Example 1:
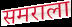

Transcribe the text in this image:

समराला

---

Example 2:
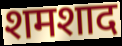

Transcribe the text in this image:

शमशाद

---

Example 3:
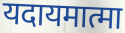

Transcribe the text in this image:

यदायमात्मा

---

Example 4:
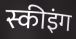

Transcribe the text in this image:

स्कीइंग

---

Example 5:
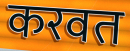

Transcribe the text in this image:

करवत